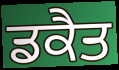
ਡਕੈਤ